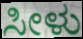
ಸೀಳು